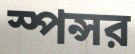
স্পন্সর